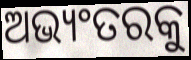
ଅଭ୍ୟଂତରକୁ